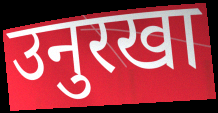
उनुरखा